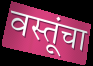
वस्तूंचा